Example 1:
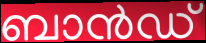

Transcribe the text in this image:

ബാൻഡ്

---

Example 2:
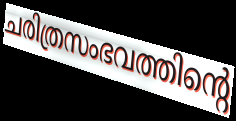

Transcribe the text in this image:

ചരിത്രസംഭവത്തിന്റെ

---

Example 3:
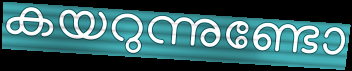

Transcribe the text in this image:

കയറുന്നുണ്ടോ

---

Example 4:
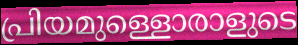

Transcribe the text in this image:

പ്രിയമുള്ളൊരാളുടെ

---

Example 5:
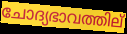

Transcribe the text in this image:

ചോദ്യഭാവത്തില്